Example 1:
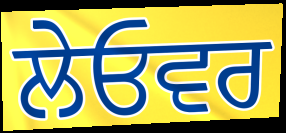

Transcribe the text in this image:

ਲੇਓਵਰ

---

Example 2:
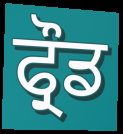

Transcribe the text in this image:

ਫ੍ਰੌਡ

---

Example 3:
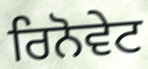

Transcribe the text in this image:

ਰਿਨੋਵੇਟ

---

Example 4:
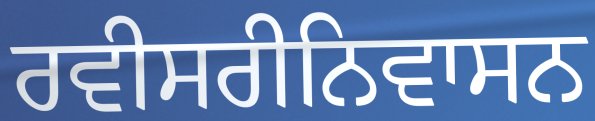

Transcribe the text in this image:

ਰਵੀਸਰੀਨਿਵਾਸਨ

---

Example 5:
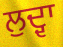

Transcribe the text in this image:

ਲੁਦ੍ਦਾ